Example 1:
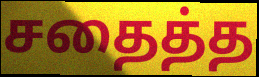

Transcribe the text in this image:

சதைத்த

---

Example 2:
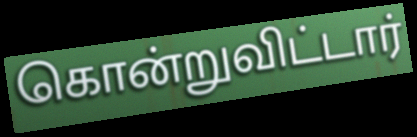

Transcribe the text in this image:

கொன்றுவிட்டார்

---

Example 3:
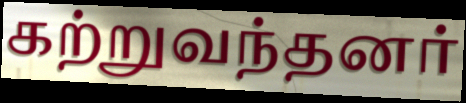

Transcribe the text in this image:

கற்றுவந்தனர்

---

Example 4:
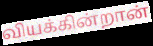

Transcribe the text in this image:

வியக்கின்றான்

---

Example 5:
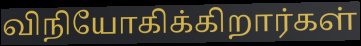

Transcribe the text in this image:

விநியோகிக்கிறார்கள்